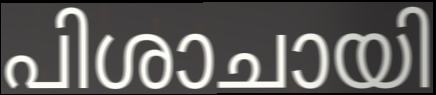
പിശാചായി